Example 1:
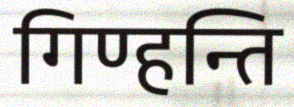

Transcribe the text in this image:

गिण्हन्ति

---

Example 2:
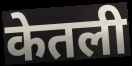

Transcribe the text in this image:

केतली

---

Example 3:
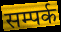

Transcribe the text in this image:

सम्‍पर्क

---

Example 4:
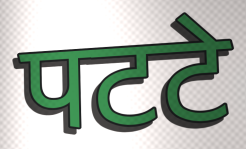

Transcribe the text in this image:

पटटे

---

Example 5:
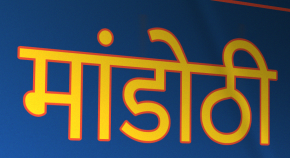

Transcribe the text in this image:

मांडोठी